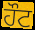
ਹੌਟ